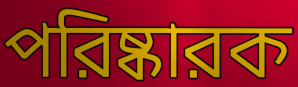
পরিষ্কারক